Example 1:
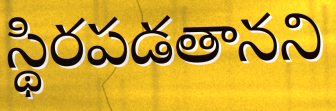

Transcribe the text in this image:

స్థిరపడతానని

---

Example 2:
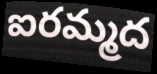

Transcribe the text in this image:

ఐరమ్మద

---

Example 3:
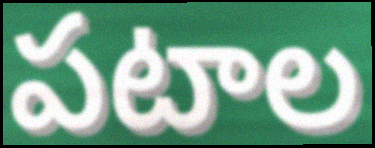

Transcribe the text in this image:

పటాల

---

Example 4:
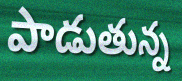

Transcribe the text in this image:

పాడుతున్న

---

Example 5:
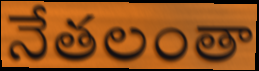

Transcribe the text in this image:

నేతలంతా